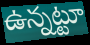
ఉన్నట్టూ